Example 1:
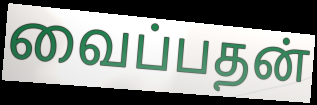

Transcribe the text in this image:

வைப்பதன்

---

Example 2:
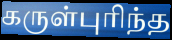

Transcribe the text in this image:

கருள்புரிந்த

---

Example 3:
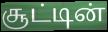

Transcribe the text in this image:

சூட்டின்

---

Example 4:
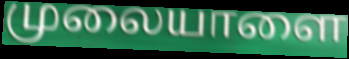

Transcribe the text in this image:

முலையாளை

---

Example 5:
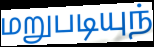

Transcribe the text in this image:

மறுபடியுந்